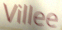
Villee